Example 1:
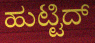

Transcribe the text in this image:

ಹುಟ್ಟಿದ್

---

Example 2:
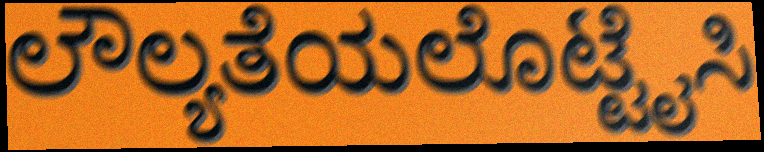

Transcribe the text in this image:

ಲೌಲ್ಯತೆಯಲೊಟ್ಟೈಸಿ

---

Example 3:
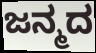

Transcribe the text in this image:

ಜನ್ಮದ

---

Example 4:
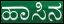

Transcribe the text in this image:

ಹಾಸಿನ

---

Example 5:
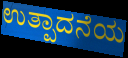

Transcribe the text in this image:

ಉತ್ಪಾದನೆಯ